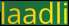
laadli